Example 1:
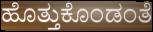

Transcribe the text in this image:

ಹೊತ್ತುಕೊಂಡಂತೆ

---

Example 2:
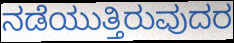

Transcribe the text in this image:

ನಡೆಯುತ್ತಿರುವುದರ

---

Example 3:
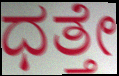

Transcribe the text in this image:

ಧತ್ತೇ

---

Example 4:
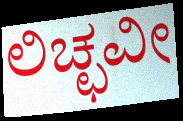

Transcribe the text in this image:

ಲಿಚ್ಛವೀ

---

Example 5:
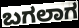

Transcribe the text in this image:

ಬಗಲಾಗ